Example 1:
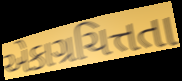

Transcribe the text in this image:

એકાગ્રચિત્તતા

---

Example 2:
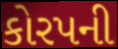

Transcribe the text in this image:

કોરપની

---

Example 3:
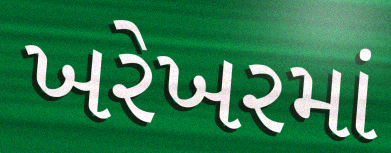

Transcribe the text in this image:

ખરેખરમાં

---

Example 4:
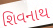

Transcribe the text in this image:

શિવનાથ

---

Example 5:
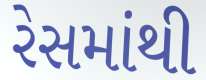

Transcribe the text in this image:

રેસમાંથી